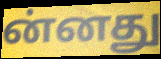
ன்னது